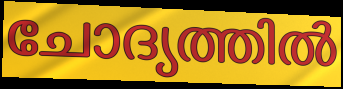
ചോദ്യത്തിൽ